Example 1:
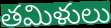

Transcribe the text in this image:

తమిళులు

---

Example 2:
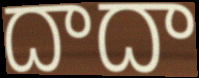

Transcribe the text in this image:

దాదా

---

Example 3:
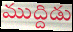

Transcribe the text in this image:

ముద్దిడు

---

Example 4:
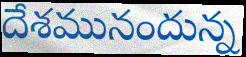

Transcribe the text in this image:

దేశమునందున్న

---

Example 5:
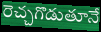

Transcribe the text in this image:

రెచ్చగొడుతూనే